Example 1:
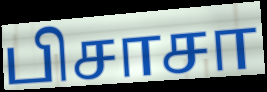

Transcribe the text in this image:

பிசாசா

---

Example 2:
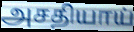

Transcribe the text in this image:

அசதியாய்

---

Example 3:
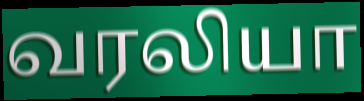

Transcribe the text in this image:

வரலியா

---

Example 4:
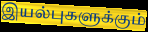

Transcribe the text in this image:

இயல்புகளுக்கும்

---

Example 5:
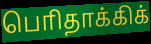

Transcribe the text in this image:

பெரிதாக்கிக்